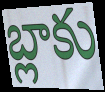
బ్లాకు